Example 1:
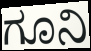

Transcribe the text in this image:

ಗೂನಿ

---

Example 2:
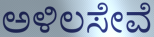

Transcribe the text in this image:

ಅಳಿಲಸೇವೆ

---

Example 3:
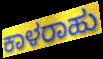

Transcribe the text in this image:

ಕಾಳರಾಹು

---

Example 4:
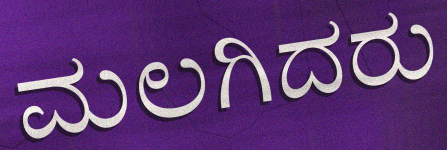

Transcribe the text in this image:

ಮಲಗಿದರು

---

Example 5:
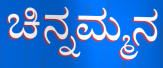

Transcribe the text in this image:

ಚಿನ್ನಮ್ಮನ